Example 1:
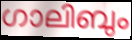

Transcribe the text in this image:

ഗാലിബും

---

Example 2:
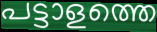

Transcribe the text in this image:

പട്ടാളത്തെ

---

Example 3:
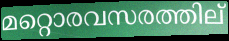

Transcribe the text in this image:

മറ്റൊരവസരത്തില്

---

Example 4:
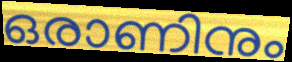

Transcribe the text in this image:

ഒരാണിനും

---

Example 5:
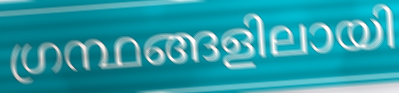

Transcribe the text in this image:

ഗ്രന്ഥങ്ങളിലായി